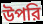
উপরি